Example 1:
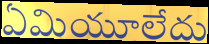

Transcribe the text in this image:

ఏమియూలేదు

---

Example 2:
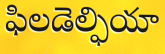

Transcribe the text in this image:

ఫిలడెల్ఫియా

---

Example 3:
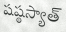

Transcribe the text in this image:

షష్ఠస్యాత్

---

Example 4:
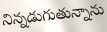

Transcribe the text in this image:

నిన్నడుగుతున్నాను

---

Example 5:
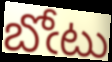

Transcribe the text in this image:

బోఁటు